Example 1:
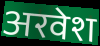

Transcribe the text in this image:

अरवेश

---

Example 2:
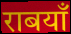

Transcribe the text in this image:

राबयाँ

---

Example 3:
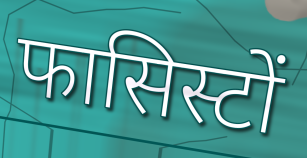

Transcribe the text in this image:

फासिस्टों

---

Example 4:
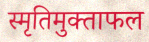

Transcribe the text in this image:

स्मृतिमुक्ताफल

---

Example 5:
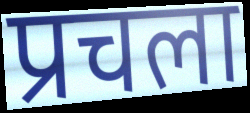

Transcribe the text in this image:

प्रचला